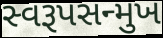
સ્વરૂપસન્મુખ